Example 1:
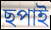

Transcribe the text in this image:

ছপাই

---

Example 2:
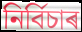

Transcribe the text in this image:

নিৰ্বিচাৰ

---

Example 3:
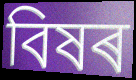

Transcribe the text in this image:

বিষৰ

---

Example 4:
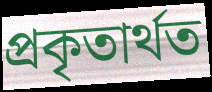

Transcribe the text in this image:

প্ৰকৃতাৰ্থত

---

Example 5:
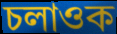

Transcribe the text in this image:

চলাওক